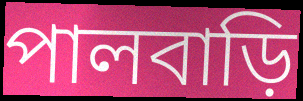
পালবাড়ি